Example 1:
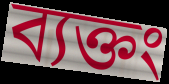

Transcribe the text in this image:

ব্যক্তং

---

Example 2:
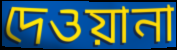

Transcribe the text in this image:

দেওয়ানা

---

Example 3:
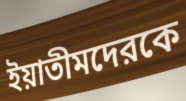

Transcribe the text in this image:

ইয়াতীমদেরকে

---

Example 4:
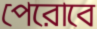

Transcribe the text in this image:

পেরোবে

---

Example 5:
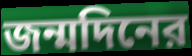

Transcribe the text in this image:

জন্মদিনের